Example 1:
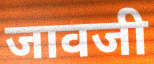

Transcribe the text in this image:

जावजी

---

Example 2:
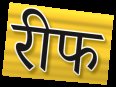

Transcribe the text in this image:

रीफ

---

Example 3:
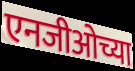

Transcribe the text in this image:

एनजीओच्या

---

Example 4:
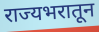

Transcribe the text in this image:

राज्यभरातून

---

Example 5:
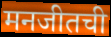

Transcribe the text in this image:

मनजीतची